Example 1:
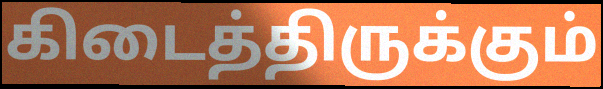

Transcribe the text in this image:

கிடைத்திருக்கும்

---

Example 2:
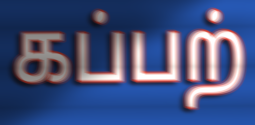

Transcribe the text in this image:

கப்பற்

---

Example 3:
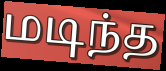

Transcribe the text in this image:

மடிந்த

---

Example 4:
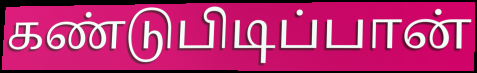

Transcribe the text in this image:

கண்டுபிடிப்பான்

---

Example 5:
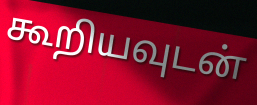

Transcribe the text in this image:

கூறியவுடன்